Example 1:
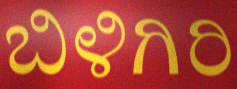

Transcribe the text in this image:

ಬಿಳಿಗಿರಿ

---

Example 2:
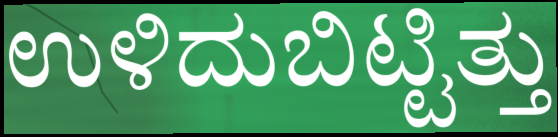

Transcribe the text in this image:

ಉಳಿದುಬಿಟ್ಟಿತ್ತು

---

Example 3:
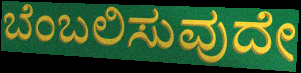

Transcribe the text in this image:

ಬೆಂಬಲಿಸುವುದೇ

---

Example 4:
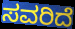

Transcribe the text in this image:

ಸವರಿದೆ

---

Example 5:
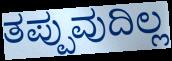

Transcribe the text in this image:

ತಪ್ಪುವುದಿಲ್ಲ